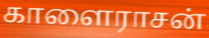
காளைராசன்